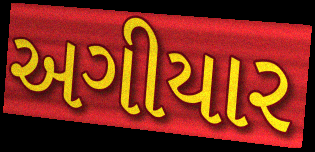
અગીયાર